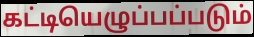
கட்டியெழுப்பப்படும்